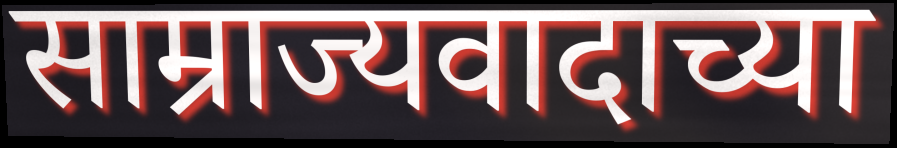
साम्राज्यवादाच्या